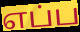
எப்ப